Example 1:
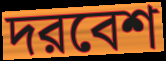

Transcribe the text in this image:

দরবেশ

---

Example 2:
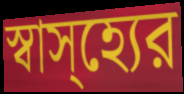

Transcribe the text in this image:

স্বাস্হ্যের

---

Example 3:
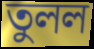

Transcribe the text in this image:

তুলল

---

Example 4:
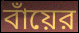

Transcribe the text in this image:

বাঁয়ের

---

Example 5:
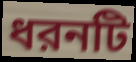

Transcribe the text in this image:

ধরনটি